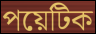
পয়েটিক